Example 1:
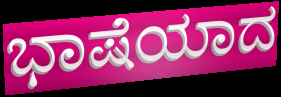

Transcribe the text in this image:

ಭಾಷೆಯಾದ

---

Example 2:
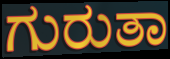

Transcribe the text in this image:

ಗುರುತಾ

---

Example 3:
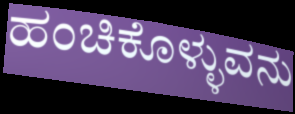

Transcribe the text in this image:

ಹಂಚಿಕೊಳ್ಳುವನು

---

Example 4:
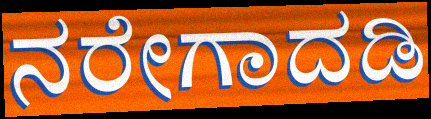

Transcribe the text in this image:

ನರೇಗಾದಡಿ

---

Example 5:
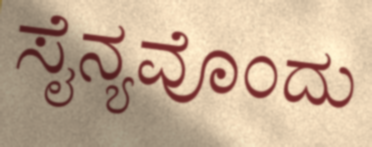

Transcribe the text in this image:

ಸೈನ್ಯವೊಂದು